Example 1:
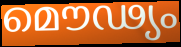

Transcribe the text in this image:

മൌഢ്യം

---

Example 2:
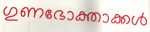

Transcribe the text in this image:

ഗുണഭോക്താക്കൾ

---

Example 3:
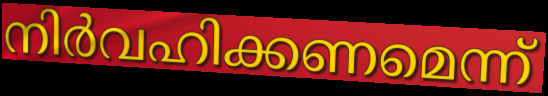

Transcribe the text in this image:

നിർവഹിക്കണമെന്ന്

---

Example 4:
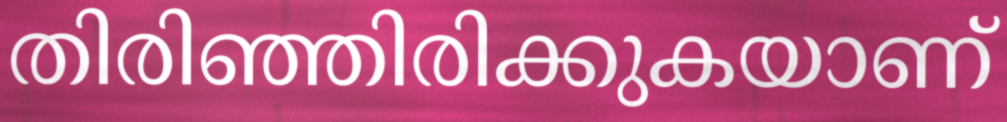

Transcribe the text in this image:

തിരിഞ്ഞിരിക്കുകയാണ്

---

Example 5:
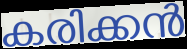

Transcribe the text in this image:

കരിക്കൻ